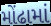
મોંઢામાં